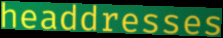
headdresses